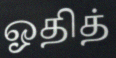
ஓதித்